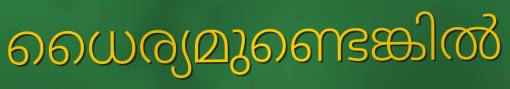
ധൈര്യമുണ്ടെങ്കിൽ